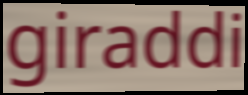
giraddi